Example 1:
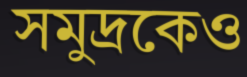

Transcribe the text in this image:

সমুদ্রকেও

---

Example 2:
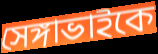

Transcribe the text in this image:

সেঙ্গাভাইকে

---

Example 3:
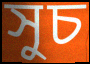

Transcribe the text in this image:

সুচ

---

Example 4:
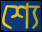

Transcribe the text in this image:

শ্যে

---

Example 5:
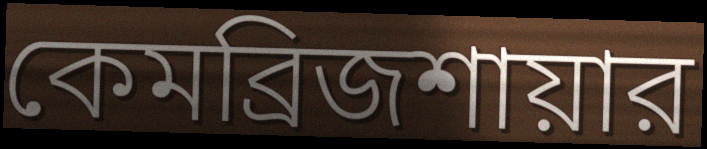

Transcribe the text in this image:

কেমব্রিজশায়ার